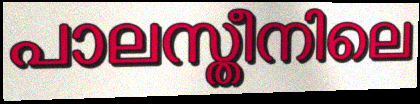
പാലസ്തീനിലെ